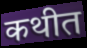
कथीत